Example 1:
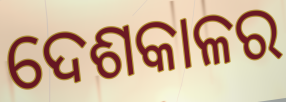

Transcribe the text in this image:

ଦେଶକାଳର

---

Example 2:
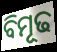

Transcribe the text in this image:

ବିମୂଢ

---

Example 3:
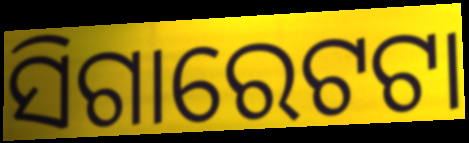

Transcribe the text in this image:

ସିଗାରେଟଟା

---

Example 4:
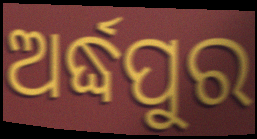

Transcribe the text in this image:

ଅର୍ଦ୍ଧପୁର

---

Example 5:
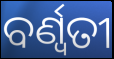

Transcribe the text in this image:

ବର୍ଣ୍ବତୀ